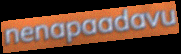
nenapaadavu